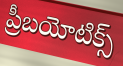
ప్రీబయోటిక్స్